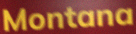
Montana